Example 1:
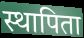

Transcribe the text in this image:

स्थापिता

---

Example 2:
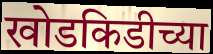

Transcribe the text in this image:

खोडकिडीच्या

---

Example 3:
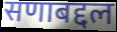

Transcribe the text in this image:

सणाबद्दल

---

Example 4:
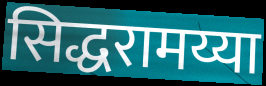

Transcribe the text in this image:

सिद्धरामय्या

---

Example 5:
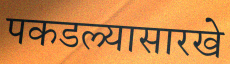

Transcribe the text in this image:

पकडल्यासारखे